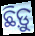
ଛିଡ଼ୁ